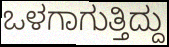
ಒಳಗಾಗುತ್ತಿದ್ದು